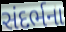
સંદર્ભના